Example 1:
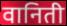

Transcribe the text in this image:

वानिती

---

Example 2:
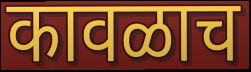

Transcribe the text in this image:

कावळाच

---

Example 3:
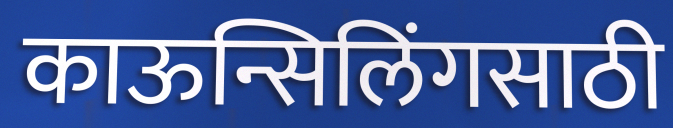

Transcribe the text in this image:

काऊन्सिलिंगसाठी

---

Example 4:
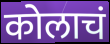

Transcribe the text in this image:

कोलाचं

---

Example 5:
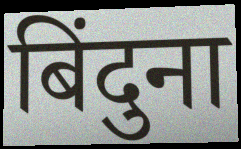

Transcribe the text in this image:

बिंदुना